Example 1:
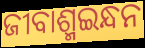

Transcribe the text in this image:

ଜୀବାଶ୍ମଇନ୍ଧନ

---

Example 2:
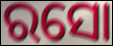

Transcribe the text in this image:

ରସୋ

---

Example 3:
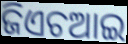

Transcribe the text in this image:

ଜିଏଚଆଇ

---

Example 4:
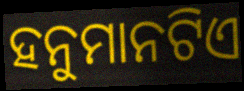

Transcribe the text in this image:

ହନୁମାନଟିଏ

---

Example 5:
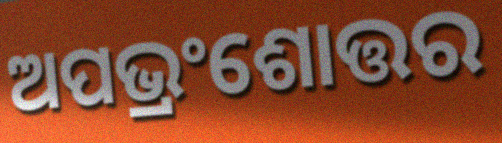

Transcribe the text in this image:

ଅପଭ୍ରଂଶୋତ୍ତର